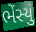
ભેંસ્યું